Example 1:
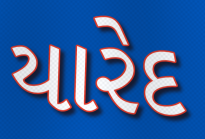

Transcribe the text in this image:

યારેદ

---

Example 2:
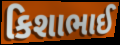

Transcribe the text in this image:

કિશાભાઈ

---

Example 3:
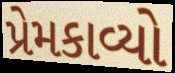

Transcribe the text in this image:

પ્રેમકાવ્યો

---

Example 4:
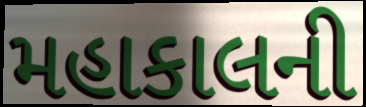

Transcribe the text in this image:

મહાકાલની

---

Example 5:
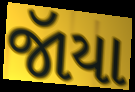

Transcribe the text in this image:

જૉયા